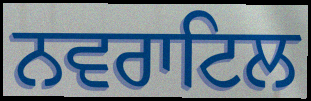
ਨਵਰਾਟਿਲ